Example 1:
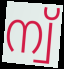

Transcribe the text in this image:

ന്വ്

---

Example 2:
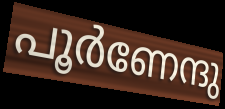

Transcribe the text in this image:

പൂർണേന്ദു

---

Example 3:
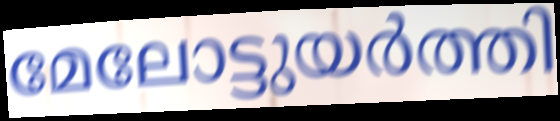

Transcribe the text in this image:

മേലോട്ടുയർത്തി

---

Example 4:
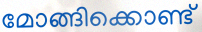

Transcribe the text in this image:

മോങ്ങിക്കൊണ്ട്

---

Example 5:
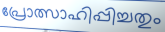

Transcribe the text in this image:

പ്രോത്സാഹിപ്പിച്ചതും